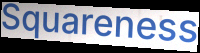
Squareness